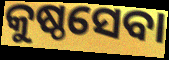
କୁଷ୍ଠସେବା